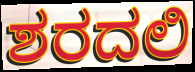
ಶರದಲಿ